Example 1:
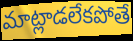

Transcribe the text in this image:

మాట్లాడలేకపోతే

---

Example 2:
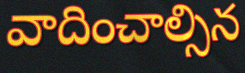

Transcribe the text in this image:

వాదించాల్సిన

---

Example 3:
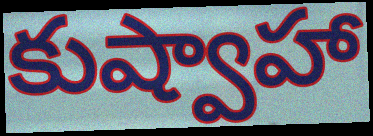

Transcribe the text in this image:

కుష్వాహా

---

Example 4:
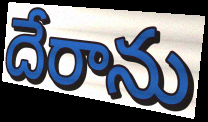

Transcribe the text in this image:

దేరాను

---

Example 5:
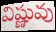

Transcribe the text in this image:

విష్ణువు